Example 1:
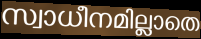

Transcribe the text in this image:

സ്വാധീനമില്ലാതെ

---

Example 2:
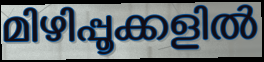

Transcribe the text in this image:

മിഴിപ്പൂക്കളിൽ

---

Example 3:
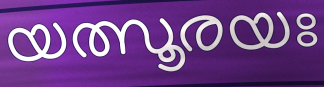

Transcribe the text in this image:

യത്സൂരയഃ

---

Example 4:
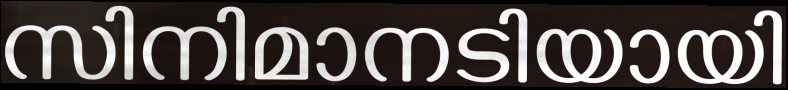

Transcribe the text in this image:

സിനിമാനടിയായി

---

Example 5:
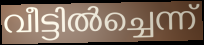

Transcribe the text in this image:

വീട്ടിൽച്ചെന്ന്